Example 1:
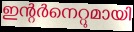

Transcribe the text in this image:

ഇന്റർനെറ്റുമായി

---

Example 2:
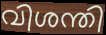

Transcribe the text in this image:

വിശന്തി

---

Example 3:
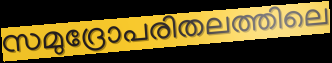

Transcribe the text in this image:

സമുദ്രോപരിതലത്തിലെ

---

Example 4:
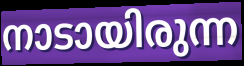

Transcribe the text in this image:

നാടായിരുന്ന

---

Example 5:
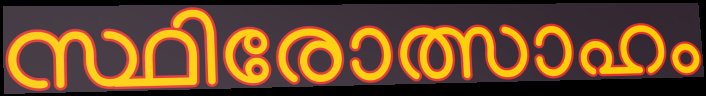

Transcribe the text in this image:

സ്ഥിരോത്സാഹം